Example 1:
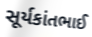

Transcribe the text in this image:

સૂર્યકાંતભાઈ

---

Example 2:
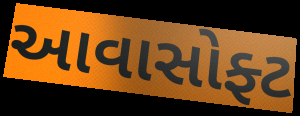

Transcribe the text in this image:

આવાસોફ્ટ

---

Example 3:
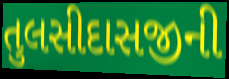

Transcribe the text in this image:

તુલસીદાસજીની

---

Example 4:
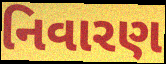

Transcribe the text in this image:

નિવારણ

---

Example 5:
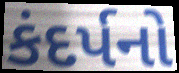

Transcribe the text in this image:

કંદર્પનો